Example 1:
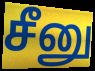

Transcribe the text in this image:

சீனு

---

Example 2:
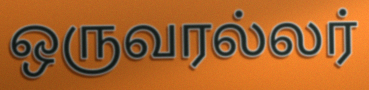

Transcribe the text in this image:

ஒருவரல்லர்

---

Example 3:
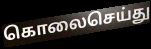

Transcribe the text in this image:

கொலைசெய்து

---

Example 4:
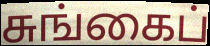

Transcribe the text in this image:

சுங்கைப்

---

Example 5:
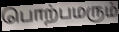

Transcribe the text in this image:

பொற்பமரும்